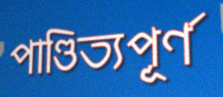
পাণ্ডিত্যপূৰ্ণ